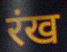
रंख